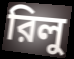
রিলু